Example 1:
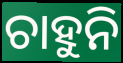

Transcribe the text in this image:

ଚାହୁନି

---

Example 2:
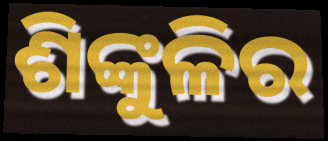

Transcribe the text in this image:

ଶିଙ୍କୁଳିର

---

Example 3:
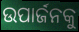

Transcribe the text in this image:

ଉପାର୍ଜନକୁ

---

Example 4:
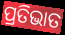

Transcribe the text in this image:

ପ୍ରତିଭାତ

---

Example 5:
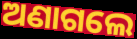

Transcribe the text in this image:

ଅଣାଗଲେ